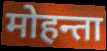
मोहन्ता